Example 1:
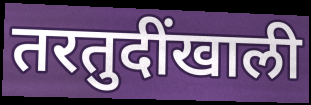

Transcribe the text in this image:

तरतुदींखाली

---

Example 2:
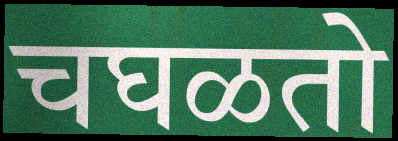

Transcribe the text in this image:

चघळतो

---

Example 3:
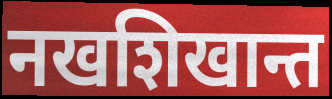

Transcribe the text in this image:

नखशिखान्त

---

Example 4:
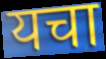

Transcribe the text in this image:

यचा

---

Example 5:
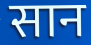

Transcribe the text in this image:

सान